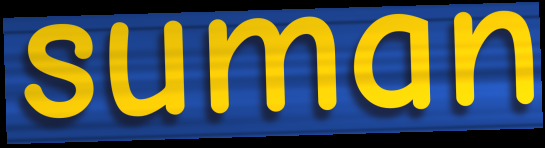
suman